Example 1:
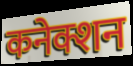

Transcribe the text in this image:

कनेक्शन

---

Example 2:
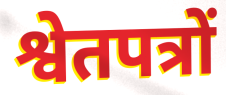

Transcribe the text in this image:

श्वेतपत्रों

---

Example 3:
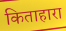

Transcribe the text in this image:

किताहारा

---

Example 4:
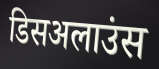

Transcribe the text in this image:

डिसअलाउंस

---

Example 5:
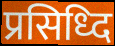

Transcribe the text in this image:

प्रसिध्दि